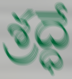
శ్రద్ధే